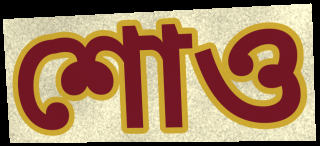
শোও